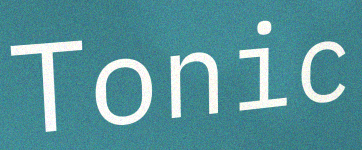
Tonic